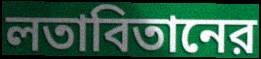
লতাবিতানের